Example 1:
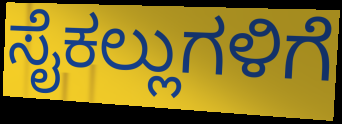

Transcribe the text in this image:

ಸೈಕಲ್ಲುಗಳಿಗೆ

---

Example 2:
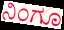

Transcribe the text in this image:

ನಿಂಗೂ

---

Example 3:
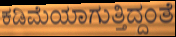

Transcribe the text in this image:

ಕಡಿಮೆಯಾಗುತ್ತಿದ್ದಂತೆ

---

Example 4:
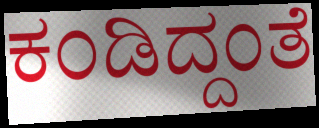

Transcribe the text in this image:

ಕಂಡಿದ್ದಂತೆ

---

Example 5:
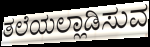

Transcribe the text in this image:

ತಲೆಯಲ್ಲಾಡಿಸುವ